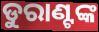
ଡୁରାଣ୍ଟଙ୍କ